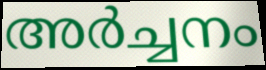
അർച്ചനം